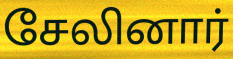
சேலினார்